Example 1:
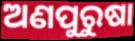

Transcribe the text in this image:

ଅଣପୁରୁଷା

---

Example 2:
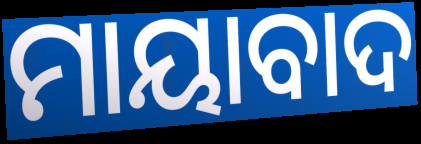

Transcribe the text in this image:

ମାୟାବାଦ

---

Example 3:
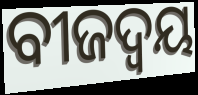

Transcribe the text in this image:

ବୀଜଦ୍ଵୟ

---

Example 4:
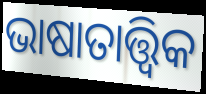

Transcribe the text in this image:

ଭାଷାତାତ୍ତ୍ୱିକ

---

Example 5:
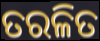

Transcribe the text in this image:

ତରଳିତ